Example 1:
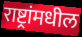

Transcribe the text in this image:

राष्ट्रांमधील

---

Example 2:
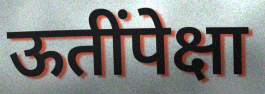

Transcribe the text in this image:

ऊतींपेक्षा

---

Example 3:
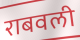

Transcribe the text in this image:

राबवली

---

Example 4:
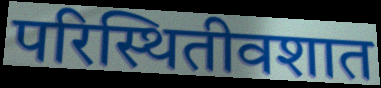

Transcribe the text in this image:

परिस्थितीवशात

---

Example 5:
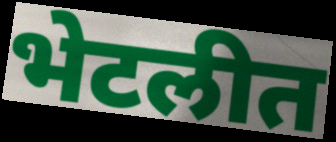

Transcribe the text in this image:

भेटलीत